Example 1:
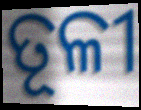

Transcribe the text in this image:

ତୂଳୀ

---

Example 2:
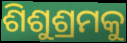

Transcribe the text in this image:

ଶିଶୁଶ୍ରମକୁ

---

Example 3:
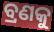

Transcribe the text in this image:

ବ୍ରଣକୁ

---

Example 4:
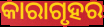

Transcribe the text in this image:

କାରାଗୃହର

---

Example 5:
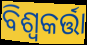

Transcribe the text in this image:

ବିଶ୍ୱକର୍ତ୍ତା